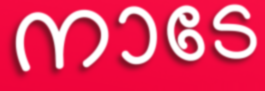
നാടേ